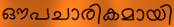
ഔപചാരികമായി